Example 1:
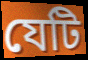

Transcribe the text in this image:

যেটি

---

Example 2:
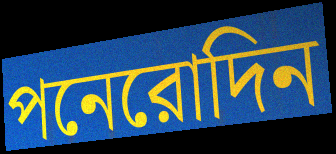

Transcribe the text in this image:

পনেরোদিন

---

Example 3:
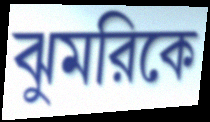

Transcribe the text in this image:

ঝুমরিকে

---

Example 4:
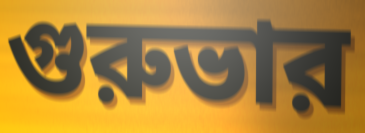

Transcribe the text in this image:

গুরুভার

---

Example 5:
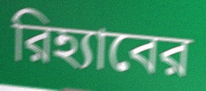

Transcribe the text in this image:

রিহ্যাবের